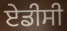
ਏਡੀਸੀ